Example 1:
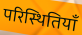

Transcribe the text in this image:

परिस्थितियाँ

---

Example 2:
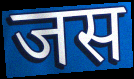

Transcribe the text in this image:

जस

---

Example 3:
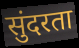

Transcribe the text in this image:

सुंदरता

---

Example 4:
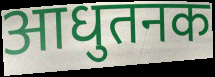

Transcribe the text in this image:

आधुतनक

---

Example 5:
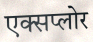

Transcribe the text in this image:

एक्सप्लोर